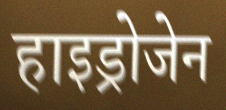
हाइड्रोजेन